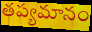
తప్యమానం